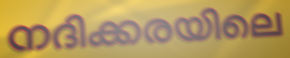
നദിക്കരയിലെ